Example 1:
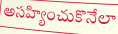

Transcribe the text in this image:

అసహ్యించుకొనేలా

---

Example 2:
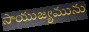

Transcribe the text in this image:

సాయుజ్యమును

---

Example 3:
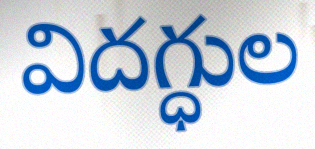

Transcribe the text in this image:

విదగ్ధుల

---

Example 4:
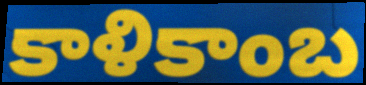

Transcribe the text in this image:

కాళికాంబ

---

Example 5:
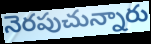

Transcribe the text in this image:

నెరపుచున్నారు